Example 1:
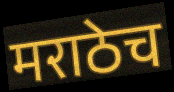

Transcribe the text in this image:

मराठेच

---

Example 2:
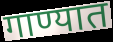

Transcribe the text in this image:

गाण्यात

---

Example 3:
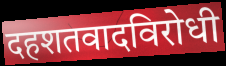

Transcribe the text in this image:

दहशतवादविरोधी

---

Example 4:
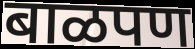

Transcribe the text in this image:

बाळपण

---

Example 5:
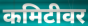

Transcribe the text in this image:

कमिटीवर